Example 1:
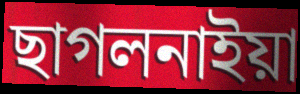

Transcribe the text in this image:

ছাগলনাইয়া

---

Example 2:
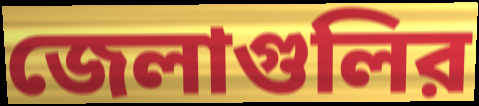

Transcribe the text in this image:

জেলাগুলির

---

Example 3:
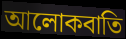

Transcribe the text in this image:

আলোকবাতি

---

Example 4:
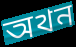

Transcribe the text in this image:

অথন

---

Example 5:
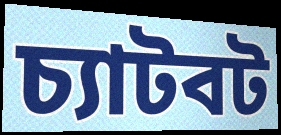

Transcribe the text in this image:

চ্যাটবট